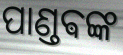
ପାଣ୍ଡଵଙ୍କ